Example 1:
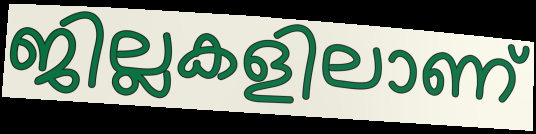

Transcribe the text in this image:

ജില്ലകളിലാണ്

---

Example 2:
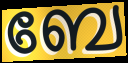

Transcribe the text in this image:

ബേ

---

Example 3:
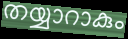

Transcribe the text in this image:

തയ്യാറാകും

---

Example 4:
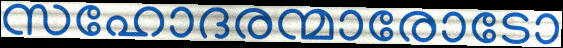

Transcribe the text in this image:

സഹോദരന്മാരോടോ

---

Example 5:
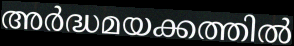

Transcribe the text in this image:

അർദ്ധമയക്കത്തിൽ